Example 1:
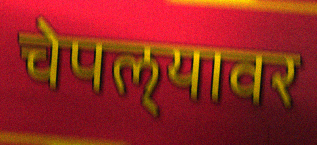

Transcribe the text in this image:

चेपल्यावर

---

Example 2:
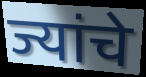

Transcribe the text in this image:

ज्यांचे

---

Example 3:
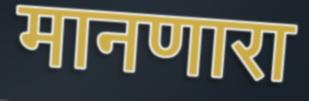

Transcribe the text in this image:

मानणारा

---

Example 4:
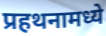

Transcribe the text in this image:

प्रहथनामध्ये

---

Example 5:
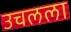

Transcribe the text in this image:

उचलला